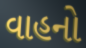
વાહનો